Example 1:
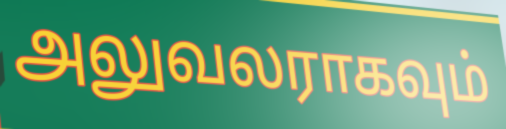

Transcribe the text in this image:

அலுவலராகவும்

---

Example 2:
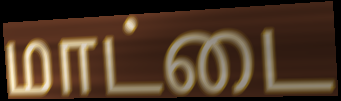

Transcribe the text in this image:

மாட்டை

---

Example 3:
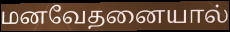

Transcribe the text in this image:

மனவேதனையால்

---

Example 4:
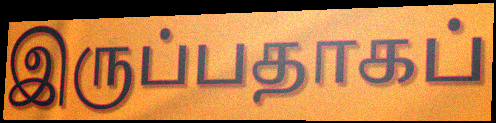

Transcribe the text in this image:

இருப்பதாகப்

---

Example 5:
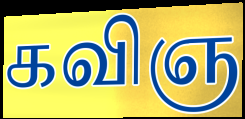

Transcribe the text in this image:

கவிஞ